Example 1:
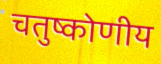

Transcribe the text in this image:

चतुष्कोणीय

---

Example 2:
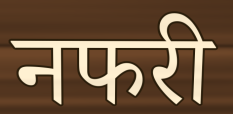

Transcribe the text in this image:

नफरी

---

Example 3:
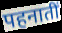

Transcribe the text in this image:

पहनातीं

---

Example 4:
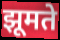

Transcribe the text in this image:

झूमते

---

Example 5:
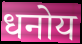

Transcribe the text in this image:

धनोय